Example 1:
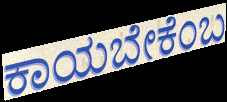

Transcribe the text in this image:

ಕಾಯಬೇಕೆಂಬ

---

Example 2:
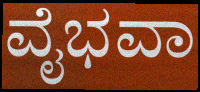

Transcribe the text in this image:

ವೈಭವಾ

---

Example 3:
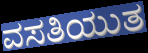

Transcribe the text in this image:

ವಸತಿಯುತ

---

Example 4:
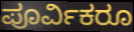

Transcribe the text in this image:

ಪೂರ್ವಿಕರೂ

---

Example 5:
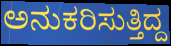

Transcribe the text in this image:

ಅನುಕರಿಸುತ್ತಿದ್ದ